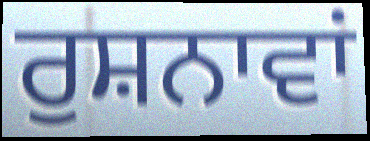
ਰੁਸ਼ਨਾਵਾਂ